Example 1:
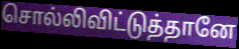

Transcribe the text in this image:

சொல்லிவிட்டுத்தானே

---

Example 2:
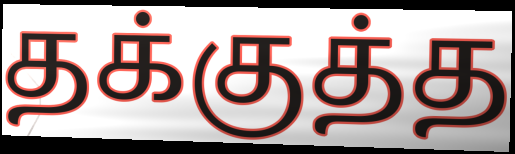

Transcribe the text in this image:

தக்குத்த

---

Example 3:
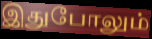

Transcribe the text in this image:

இதுபோலும்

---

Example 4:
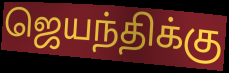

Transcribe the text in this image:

ஜெயந்திக்கு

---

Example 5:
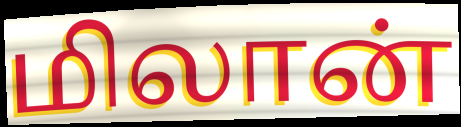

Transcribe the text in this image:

மிலான்